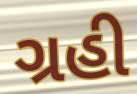
ગ્રહી